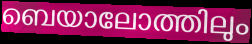
ബെയാലോത്തിലും